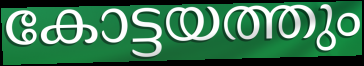
കോട്ടയത്തും